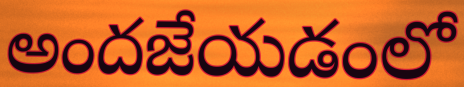
అందజేయడంలో